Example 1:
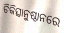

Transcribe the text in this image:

ଚିକିତ୍ସାନୁଷ୍ଠାନରେ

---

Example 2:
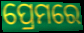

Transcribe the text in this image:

ପ୍ରେମରେ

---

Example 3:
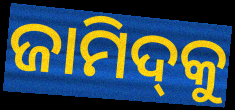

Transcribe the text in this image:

ଜାମିଦ୍‌କୁ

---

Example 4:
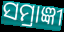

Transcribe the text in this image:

ସମ୍ରାଜ୍ଞୀ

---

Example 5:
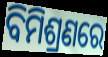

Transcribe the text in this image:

ବିମିଶ୍ରଣରେ